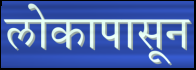
लोकापासून